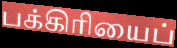
பக்கிரியைப்